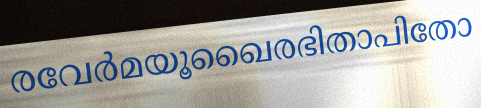
രവേർമയൂഖൈരഭിതാപിതോ